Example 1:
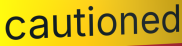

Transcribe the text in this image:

cautioned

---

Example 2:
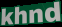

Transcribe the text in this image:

khnd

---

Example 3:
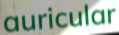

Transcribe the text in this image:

auricular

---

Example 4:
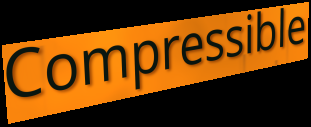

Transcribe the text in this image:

Compressible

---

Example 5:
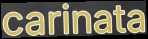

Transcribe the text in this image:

carinata